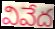
వివేద